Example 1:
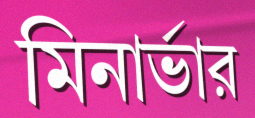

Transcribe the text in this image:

মিনার্ভার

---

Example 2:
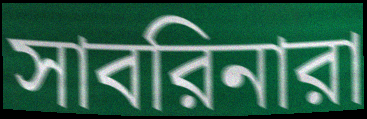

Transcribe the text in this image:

সাবরিনারা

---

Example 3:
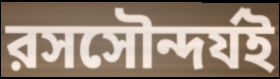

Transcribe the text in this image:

রসসৌন্দর্যই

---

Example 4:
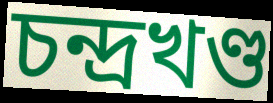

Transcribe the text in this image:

চন্দ্রখণ্ড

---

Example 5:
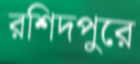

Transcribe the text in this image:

রশিদপুরে